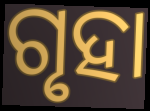
ଗୃହା